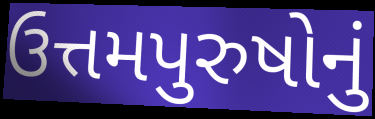
ઉત્તમપુરુષોનું